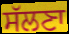
ਸੱਲਣਾ